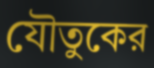
যৌতুকের